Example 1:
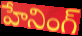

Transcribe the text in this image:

హేనింగ్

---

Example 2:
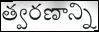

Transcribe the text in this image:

త్వరణాన్ని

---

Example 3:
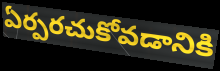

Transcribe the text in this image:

ఏర్పరచుకోవడానికి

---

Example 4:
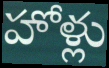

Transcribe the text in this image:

హోళ్లు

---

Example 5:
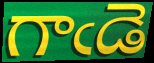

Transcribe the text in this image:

గాఁడె